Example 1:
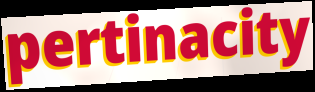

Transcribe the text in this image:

pertinacity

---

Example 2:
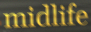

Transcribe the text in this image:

midlife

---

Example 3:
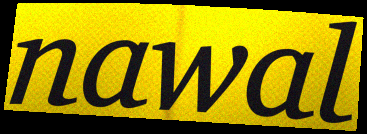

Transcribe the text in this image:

nawal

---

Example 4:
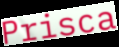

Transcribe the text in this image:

Prisca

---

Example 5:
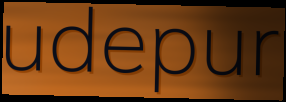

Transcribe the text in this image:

udepur